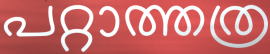
പറ്റാത്തത്ര